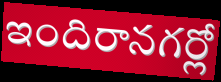
ఇందిరానగర్లో